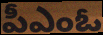
పీఎంఓ